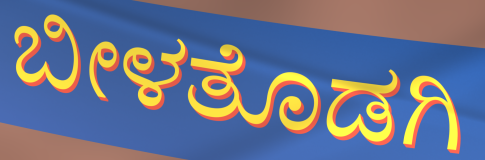
ಬೀಳತೊಡಗಿ